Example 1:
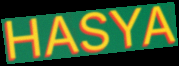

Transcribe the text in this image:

HASYA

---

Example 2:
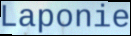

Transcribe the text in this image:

Laponie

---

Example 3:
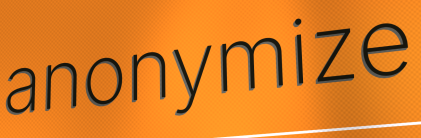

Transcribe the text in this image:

anonymize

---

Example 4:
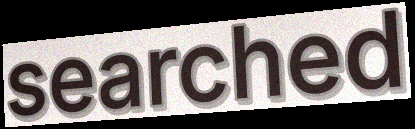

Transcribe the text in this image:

searched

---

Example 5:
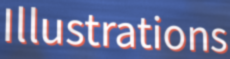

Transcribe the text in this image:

Illustrations